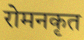
रोमनकृत